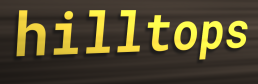
hilltops